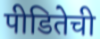
पीडितेची